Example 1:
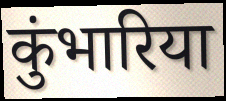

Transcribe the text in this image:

कुंभारिया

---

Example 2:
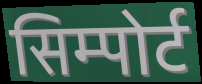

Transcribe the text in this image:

सिम्पोर्ट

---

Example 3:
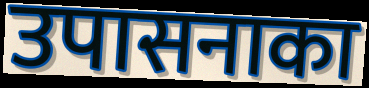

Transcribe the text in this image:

उपासनाका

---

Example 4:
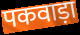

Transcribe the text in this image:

पकवाड़ा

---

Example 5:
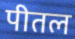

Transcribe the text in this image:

पीतल